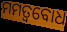
ମମତ୍ବବୋଧ